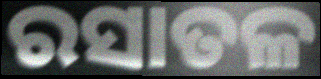
ରସାତଳ